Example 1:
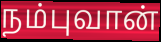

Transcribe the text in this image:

நம்புவான்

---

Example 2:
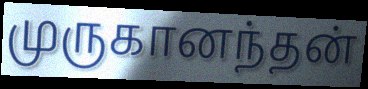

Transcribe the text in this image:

முருகானந்தன்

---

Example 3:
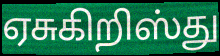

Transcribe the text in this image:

ஏசுகிறிஸ்து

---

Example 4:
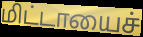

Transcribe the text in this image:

மிட்டாயைச்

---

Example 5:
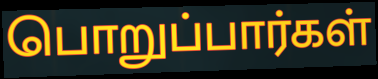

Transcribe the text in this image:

பொறுப்பார்கள்